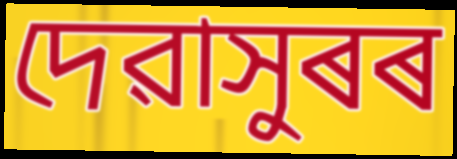
দেৱাসুৰৰ